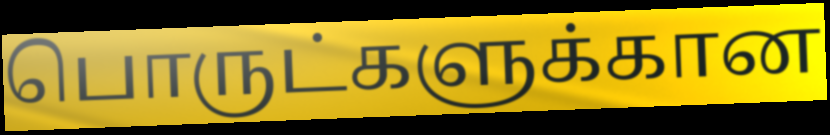
பொருட்களுக்கான